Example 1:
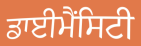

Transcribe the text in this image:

ਡਾਈਮੈਂਸਿਟੀ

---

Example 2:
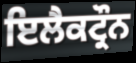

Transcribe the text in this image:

ਇਲੈਕਟ੍ਰੌਨ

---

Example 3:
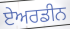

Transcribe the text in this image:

ਏਅਰਡੀਨ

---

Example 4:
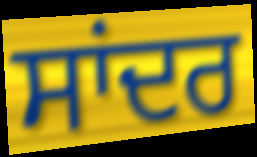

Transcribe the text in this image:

ਸਾਂਦਰ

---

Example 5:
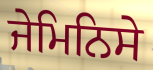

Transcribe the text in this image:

ਜੇਮਿਨਿਸੇ